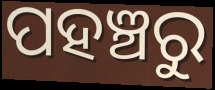
ପହଞ୍ଚରୁ